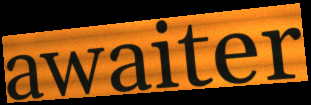
awaiter